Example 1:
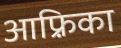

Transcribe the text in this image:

आफ़्रिका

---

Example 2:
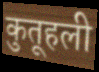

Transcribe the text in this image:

कुतूहली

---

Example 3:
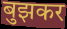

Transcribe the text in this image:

बुझकर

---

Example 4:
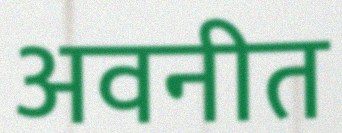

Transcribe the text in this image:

अवनीत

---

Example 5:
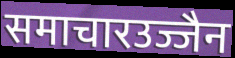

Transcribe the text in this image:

समाचारउज्जैन